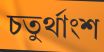
চতুর্থাংশ